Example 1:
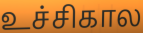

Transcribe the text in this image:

உச்சிகால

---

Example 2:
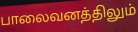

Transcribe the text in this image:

பாலைவனத்திலும்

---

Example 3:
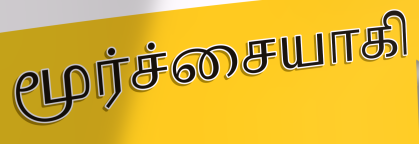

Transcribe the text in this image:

மூர்ச்சையாகி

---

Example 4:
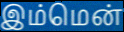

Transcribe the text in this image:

இம்மென்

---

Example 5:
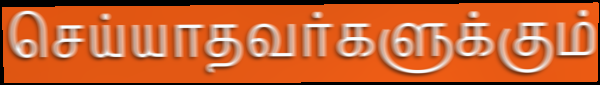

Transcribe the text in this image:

செய்யாதவர்களுக்கும்